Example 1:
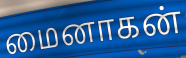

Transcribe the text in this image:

மைனாகன்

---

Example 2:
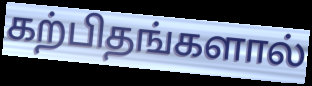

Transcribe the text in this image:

கற்பிதங்களால்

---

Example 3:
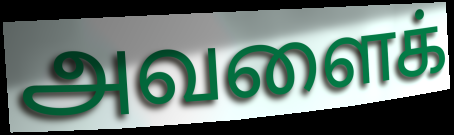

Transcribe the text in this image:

அவளைக்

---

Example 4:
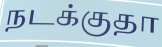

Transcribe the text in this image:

நடக்குதா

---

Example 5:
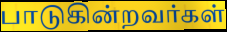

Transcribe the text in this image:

பாடுகின்றவர்கள்